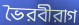
ভৈরবীরাগ